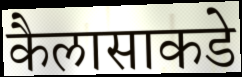
कैलासाकडे